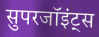
सुपरजॉइंट्स